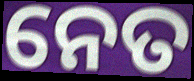
ନେତ